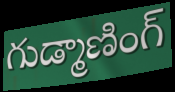
గుడ్మాణింగ్